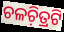
ଚଳଚ଼ିତ୍ରଟି